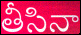
తీసినా